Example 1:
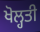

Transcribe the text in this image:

ਖੋਲ੍ਹਤੀ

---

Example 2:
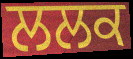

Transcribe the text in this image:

ਲਲਕ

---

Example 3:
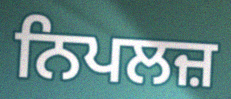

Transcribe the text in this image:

ਨਿਪਲਜ਼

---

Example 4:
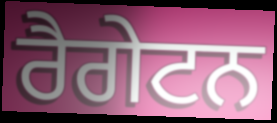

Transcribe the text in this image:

ਰੈਗੇਟਨ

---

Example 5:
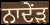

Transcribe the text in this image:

ਨਾਦੇਂੜ